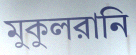
মুকুলরানি